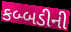
કબ્બડીની